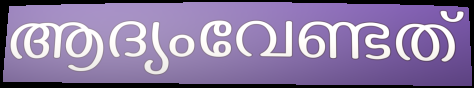
ആദ്യംവേണ്ടത്